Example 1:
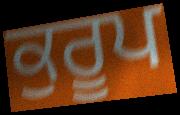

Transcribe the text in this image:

ਕੁਰੂਪ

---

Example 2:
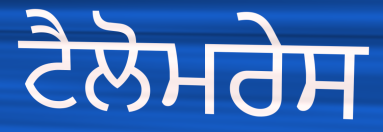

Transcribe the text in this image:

ਟੈਲੋਮਰੇਸ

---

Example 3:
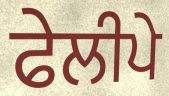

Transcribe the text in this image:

ਫੇਲੀਪੇ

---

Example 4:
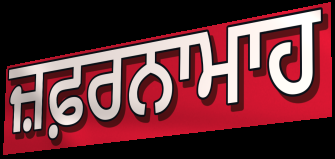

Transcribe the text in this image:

ਜ਼ਫ਼ਰਨਾਮਾਹ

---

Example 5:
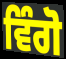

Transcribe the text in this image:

ਵਿੰਗੋ